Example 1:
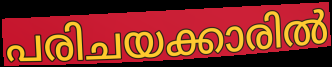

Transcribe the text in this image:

പരിചയക്കാരിൽ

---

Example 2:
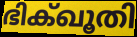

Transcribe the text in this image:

ഭിക്ഖൂതി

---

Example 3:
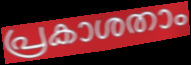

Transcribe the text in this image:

പ്രകാശതാം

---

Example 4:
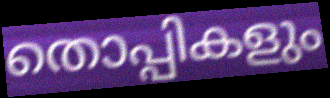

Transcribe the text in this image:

തൊപ്പികളും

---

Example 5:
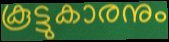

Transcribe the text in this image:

കൂട്ടുകാരനും